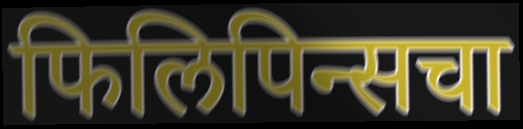
फिलिपिन्सचा